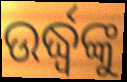
ଉର୍ଦ୍ଧ୍ୱଙ୍କୁ